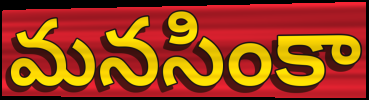
మనసింకా